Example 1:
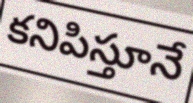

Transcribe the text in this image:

కనిపిస్తూనే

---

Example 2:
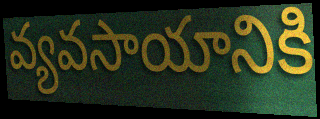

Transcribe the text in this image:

వ్యవసాయానికి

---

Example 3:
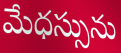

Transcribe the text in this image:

మేధస్సును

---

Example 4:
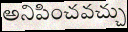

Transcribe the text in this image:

అనిపించవచ్చు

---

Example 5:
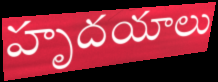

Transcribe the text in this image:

హృదయాలు